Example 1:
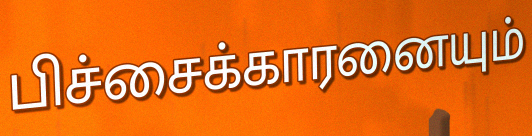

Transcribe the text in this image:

பிச்சைக்காரனையும்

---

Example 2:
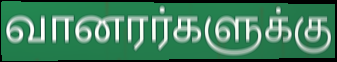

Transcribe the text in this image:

வானரர்களுக்கு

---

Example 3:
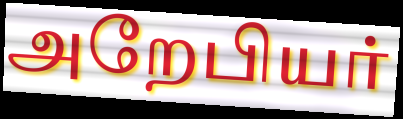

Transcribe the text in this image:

அறேபியர்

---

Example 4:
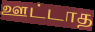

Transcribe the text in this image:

ஊட்டாத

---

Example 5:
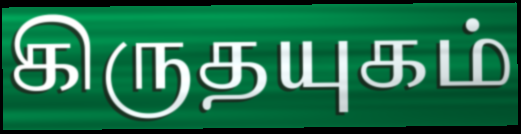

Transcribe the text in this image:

கிருதயுகம்